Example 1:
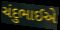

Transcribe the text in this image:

ચંદુભાઈએ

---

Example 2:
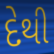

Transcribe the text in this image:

દેથી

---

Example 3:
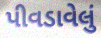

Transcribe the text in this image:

પીવડાવેલું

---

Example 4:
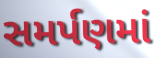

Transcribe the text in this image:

સમર્પણમાં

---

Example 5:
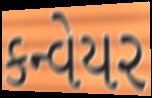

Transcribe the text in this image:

કન્વેયર